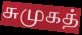
சுமுகத்